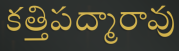
కత్తిపద్మారావు